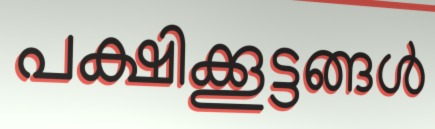
പക്ഷിക്കൂട്ടങ്ങൾ